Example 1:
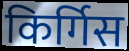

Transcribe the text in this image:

किर्गिस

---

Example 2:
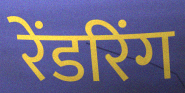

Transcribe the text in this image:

रेंडरिंग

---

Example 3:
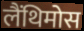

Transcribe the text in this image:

लैंथिमोस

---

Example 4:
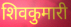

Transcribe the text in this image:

शिवकुमारी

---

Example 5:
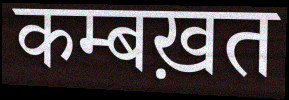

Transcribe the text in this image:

कम्बख़त